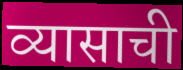
व्यासाची